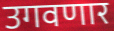
उगवणार